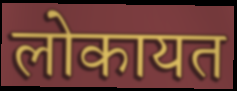
लोकायत